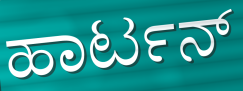
ಹಾರ್ಟನ್